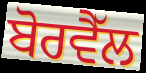
ਬੋਰਵੈੱਲ